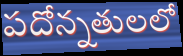
పదోన్నతులలో